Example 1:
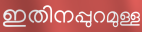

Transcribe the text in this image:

ഇതിനപ്പുറമുള്ള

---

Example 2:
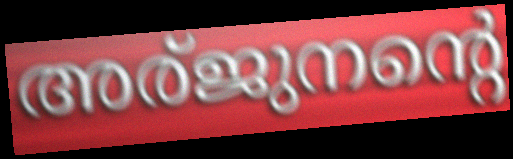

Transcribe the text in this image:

അര്ജുനന്റെ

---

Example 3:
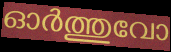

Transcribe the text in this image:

ഓർത്തുവോ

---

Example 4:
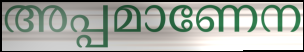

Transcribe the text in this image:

അപ്പമാണേന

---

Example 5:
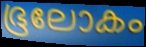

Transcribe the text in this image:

ഭൂലോകം